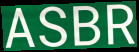
ASBR